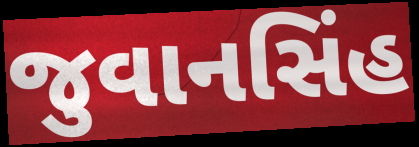
જુવાનસિંહ